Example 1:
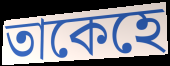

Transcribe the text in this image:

তাকেহে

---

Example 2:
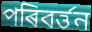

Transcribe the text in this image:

পৰিবৰ্ত্তন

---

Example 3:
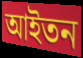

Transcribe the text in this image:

আইতন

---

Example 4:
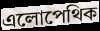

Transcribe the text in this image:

এলোপেথিক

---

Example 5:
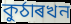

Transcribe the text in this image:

কুঠাৰখন